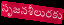
సృజనశీలురకు